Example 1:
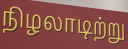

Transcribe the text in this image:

நிழலாடிற்று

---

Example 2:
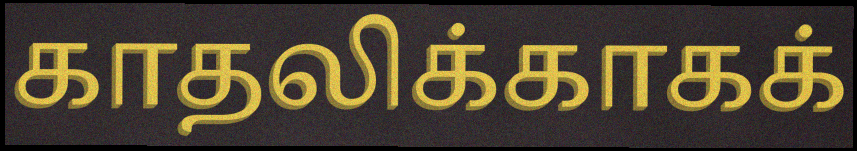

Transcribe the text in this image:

காதலிக்காகக்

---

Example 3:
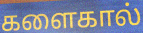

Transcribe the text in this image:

களைகால்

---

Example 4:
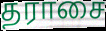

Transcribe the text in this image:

தராசை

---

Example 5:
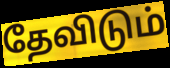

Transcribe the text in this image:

தேவிடும்